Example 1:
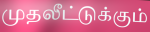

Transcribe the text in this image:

முதலீட்டுக்கும்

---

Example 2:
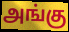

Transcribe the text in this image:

அங்கு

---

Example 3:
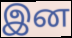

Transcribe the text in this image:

இன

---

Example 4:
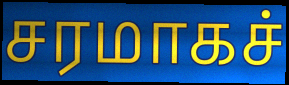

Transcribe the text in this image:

சரமாகச்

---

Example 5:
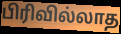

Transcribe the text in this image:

பிரிவில்லாத